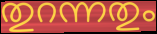
തുറന്നതും